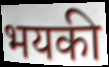
भयकी